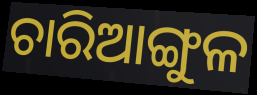
ଚାରିଆଙ୍ଗୁଳ